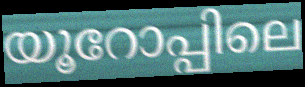
യൂറോപ്പിലെ